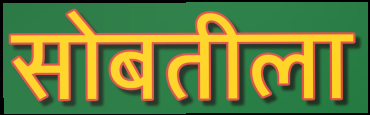
सोबतीला